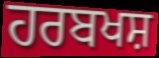
ਹਰਬਖਸ਼